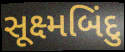
સૂક્ષ્મબિંદુ